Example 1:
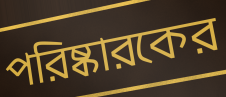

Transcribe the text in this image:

পরিষ্কারকের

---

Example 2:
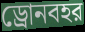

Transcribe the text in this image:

ড্রোনবহর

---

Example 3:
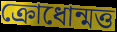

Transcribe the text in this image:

ক্রোধোন্মত্ত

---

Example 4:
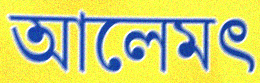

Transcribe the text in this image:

আলেমৎ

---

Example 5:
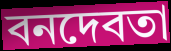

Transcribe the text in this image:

বনদেবতা